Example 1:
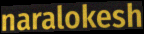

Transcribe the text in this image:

naralokesh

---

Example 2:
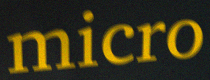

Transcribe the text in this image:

micro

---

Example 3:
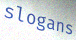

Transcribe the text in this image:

slogans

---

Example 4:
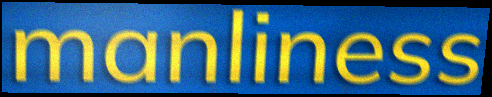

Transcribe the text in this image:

manliness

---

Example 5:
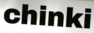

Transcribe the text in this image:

chinki